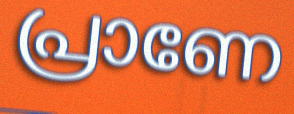
പ്രാണേ